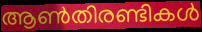
ആൺതിരണ്ടികൾ